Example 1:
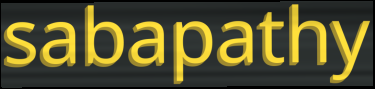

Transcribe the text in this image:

sabapathy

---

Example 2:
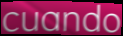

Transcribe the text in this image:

cuando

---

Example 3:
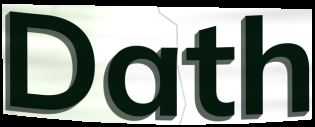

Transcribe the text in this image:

Dath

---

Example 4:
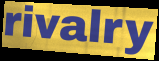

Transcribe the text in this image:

rivalry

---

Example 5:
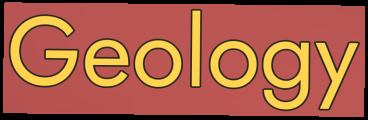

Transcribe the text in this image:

Geology